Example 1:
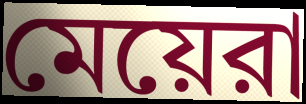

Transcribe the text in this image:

মেয়েরা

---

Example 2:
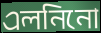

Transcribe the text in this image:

এলনিনো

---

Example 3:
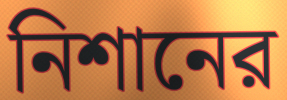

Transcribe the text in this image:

নিশানের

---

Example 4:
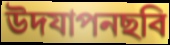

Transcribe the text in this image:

উদযাপনছবি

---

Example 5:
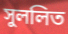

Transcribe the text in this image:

সুললিত